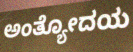
ಅಂತ್ಯೋದಯ